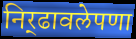
निर्ढावलेपणा